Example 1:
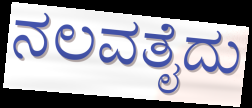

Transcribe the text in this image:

ನಲವತೈದು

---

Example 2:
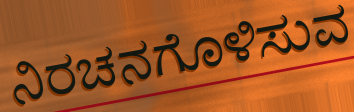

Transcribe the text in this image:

ನಿರಚನಗೊಳಿಸುವ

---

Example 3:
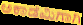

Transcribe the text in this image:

ಅಕಾಡೆಮಿಗಾಗಿ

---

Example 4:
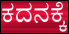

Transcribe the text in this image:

ಕದನಕ್ಕೆ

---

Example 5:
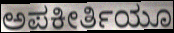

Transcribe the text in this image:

ಅಪಕೀರ್ತಿಯೂ